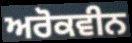
ਅਰੋਕਵੀਨ